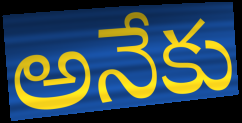
అనేకు